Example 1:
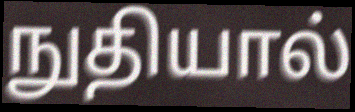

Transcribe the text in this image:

நுதியால்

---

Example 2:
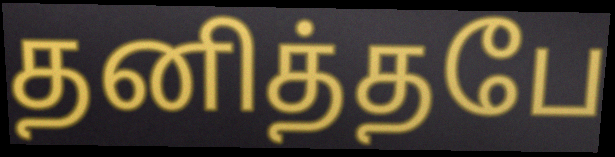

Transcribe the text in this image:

தனித்தபே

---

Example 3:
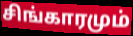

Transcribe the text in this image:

சிங்காரமும்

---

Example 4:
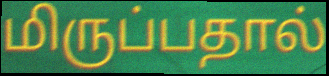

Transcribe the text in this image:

மிருப்பதால்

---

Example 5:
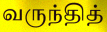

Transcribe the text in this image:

வருந்தித்